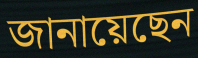
জানায়েছেন